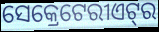
ସେକ୍ରେଟେରୀଏଟ୍‍ର